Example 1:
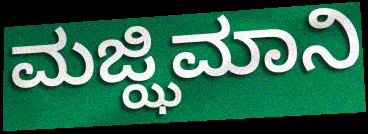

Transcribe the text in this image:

ಮಜ್ಝಿಮಾನಿ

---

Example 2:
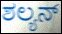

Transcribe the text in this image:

ಶಲ್ಯನ್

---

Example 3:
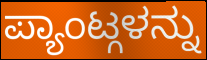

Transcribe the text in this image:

ಪ್ಯಾಂಟ್ಗಳನ್ನು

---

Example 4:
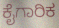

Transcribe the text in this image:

ಕೈಗಾರಿಕ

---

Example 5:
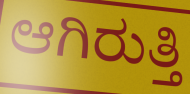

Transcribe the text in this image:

ಆಗಿರುತ್ತಿ